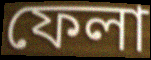
ফেলা